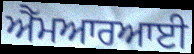
ਐੱਮਆਰਆਈ